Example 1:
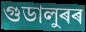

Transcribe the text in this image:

গুডালুৰৰ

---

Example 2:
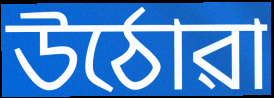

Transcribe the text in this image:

উঠোৱা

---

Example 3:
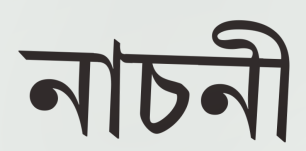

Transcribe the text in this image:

নাচনী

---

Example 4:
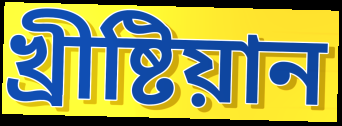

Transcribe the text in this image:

খ্ৰীষ্টিয়ান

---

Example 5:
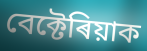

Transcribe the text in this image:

বেক্টেৰিয়াক